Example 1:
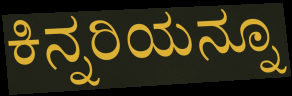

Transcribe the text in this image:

ಕಿನ್ನರಿಯನ್ನೂ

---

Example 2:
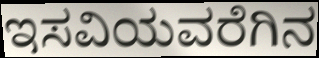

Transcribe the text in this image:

ಇಸವಿಯವರೆಗಿನ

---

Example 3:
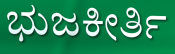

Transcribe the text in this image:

ಭುಜಕೀರ್ತಿ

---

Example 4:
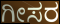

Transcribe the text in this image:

ಗೀಸರ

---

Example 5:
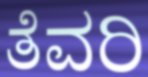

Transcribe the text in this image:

ತೆವರಿ